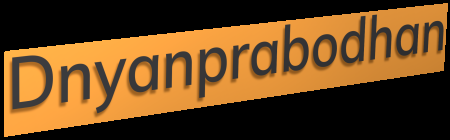
Dnyanprabodhan